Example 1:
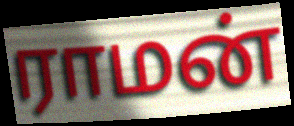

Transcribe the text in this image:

ராமன்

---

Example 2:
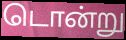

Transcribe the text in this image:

டொன்று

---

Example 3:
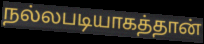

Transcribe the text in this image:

நல்லபடியாகத்தான்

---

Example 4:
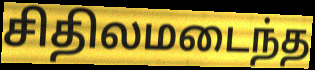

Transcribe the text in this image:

சிதிலமடைந்த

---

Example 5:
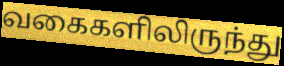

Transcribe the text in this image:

வகைகளிலிருந்து